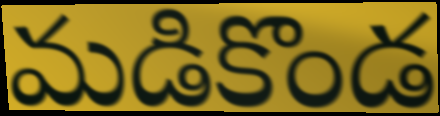
మడికొండ